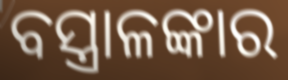
ବସ୍ତ୍ରାଳଙ୍କାର